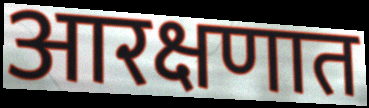
आरक्षणात